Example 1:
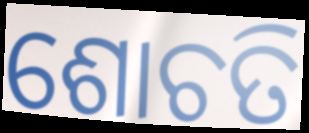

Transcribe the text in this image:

ଶୋଚତି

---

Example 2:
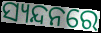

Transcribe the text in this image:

ସ୍ୟନ୍ଦନରେ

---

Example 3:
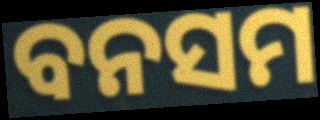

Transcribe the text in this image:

ବନସମ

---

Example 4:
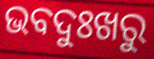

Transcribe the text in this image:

ଭବଦୁଃଖରୁ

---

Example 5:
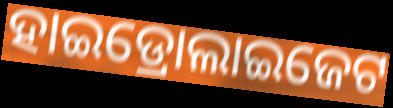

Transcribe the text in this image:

ହାଇଡ୍ରୋଲାଇଜେଟ